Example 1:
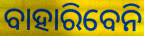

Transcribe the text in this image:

ବାହାରିବେନି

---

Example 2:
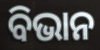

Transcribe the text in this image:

ବିଭାନ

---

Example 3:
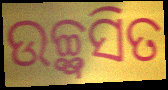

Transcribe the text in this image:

ଉଚ୍ଛ୍ୱସିତ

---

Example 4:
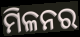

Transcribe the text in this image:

ମିଳନର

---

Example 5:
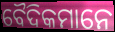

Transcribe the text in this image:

ବୈଦିକମାନେ